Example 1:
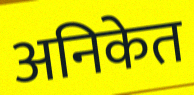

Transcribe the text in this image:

अनिकेत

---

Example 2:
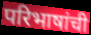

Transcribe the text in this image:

परिभाषांची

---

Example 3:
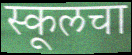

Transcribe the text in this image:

स्कूलचा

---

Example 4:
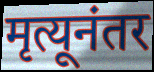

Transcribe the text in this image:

मृत्यूनंतर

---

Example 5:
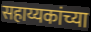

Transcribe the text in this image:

सहाय्यकांच्या